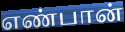
எண்பான்